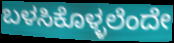
ಬಳಸಿಕೊಳ್ಳಲೆಂದೇ